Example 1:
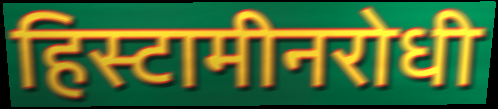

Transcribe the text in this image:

हिस्टामीनरोधी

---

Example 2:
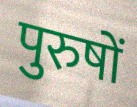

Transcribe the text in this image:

पुरुषों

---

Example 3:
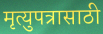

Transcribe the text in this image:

मृत्युपत्रासाठी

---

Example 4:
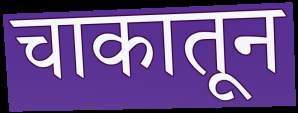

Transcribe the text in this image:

चाकातून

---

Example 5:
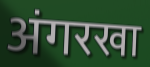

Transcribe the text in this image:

अंगरखा